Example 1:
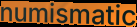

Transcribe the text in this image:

numismatic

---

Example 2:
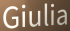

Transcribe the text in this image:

Giulia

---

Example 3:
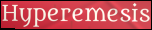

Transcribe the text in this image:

Hyperemesis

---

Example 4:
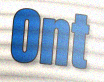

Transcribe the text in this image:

Ont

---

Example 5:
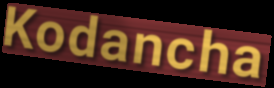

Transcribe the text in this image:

Kodancha